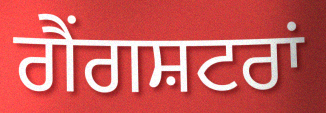
ਗੈਂਗਸ਼ਟਰਾਂ